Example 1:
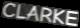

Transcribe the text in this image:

CLARKE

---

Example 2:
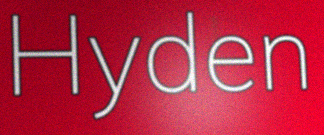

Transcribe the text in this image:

Hyden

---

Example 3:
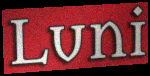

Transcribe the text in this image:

Luni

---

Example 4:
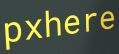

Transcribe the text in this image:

pxhere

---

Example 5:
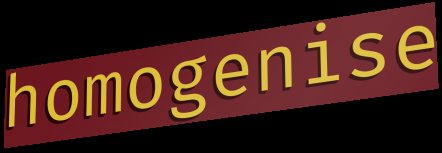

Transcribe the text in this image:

homogenise